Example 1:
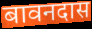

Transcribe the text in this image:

बावनदास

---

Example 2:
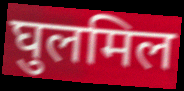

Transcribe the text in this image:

घुलमिल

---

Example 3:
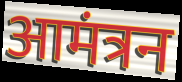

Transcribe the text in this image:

आमंत्रन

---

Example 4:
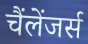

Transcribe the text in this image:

चैंलेंजर्स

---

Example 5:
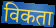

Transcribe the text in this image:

विकता